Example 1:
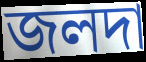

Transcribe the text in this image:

জলদা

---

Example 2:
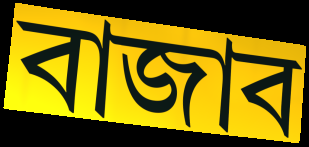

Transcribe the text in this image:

বাজাব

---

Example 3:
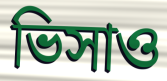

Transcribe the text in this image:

ভিসাও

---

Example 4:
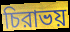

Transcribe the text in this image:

চিরাভয়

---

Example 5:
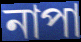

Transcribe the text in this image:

নাপা